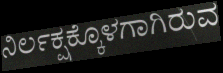
ನಿರ್ಲಕ್ಷಕ್ಕೊಳಗಾಗಿರುವ